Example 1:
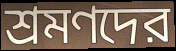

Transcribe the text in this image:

শ্রমণদের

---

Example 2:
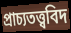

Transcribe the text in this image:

প্রাচ্যতত্ত্ববিদ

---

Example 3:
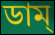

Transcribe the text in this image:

ডাম্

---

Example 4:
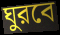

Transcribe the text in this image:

ঘুরবে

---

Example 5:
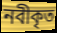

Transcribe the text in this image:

নবীকৃত